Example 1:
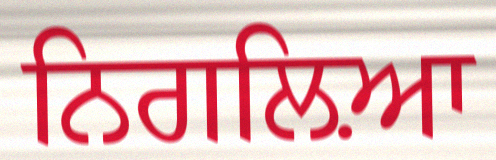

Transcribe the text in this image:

ਨਿਗਲ਼ਿਆ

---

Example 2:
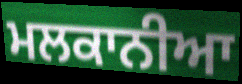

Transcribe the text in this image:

ਮਲਕਾਨੀਆ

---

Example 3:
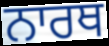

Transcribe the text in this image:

ਨਾਰਥ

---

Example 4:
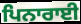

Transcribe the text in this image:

ਪਿਨਾਰਾਈ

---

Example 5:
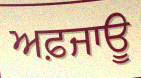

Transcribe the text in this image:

ਅਫ਼ਜਾਊ